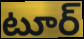
టూర్